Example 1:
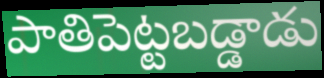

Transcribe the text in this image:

పాతిపెట్టబడ్డాడు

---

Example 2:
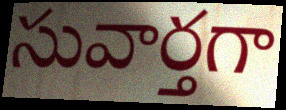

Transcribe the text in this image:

సువార్తగా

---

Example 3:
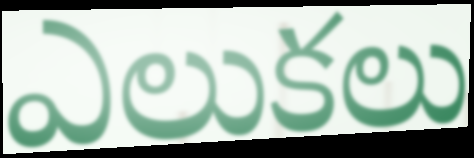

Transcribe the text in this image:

ఎలుకలు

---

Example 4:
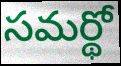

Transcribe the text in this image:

సమర్థో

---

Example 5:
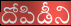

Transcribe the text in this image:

దోపిడీని